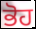
ਭੋਹ